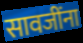
सावजींना